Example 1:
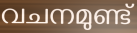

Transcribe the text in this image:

വചനമുണ്ട്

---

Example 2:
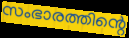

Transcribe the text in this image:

സംഭാരത്തിന്റെ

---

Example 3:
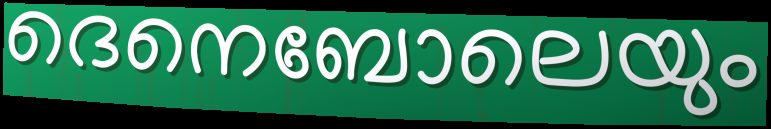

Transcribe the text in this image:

ദെനെബോലെയും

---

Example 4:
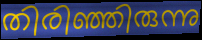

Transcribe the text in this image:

തിരിഞ്ഞിരുന്നു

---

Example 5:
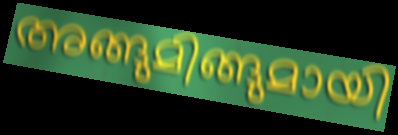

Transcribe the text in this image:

അങ്ങുമിങ്ങുമായി